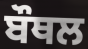
ਬੌਥਲ